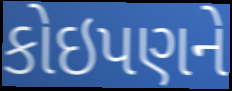
કોઇપણને